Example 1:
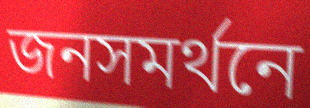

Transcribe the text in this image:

জনসমর্থনে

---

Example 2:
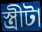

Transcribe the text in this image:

স্ত্রীটা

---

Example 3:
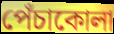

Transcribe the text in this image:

পেঁচাকোলা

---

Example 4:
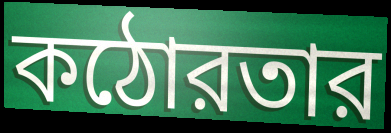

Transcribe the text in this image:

কঠোরতার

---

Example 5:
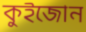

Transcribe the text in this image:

কুইজোন